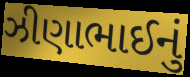
ઝીણાભાઈનું